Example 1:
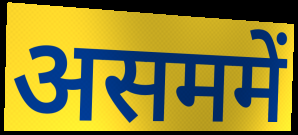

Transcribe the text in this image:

असममें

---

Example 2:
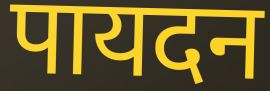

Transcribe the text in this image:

पायदन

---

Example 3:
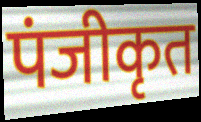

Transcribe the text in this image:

पंजीकृत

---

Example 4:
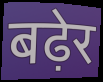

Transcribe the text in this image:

बढ़ेर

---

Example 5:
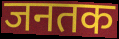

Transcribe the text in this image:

जनतक